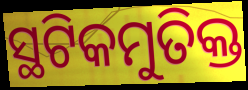
ସ୍ଥଟିକମୁତିକ୍ତ